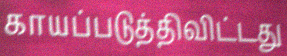
காயப்படுத்திவிட்டது